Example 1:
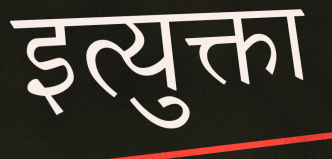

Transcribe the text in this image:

इत्युक्ता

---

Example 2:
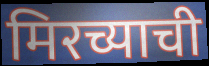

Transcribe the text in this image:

मिरच्याची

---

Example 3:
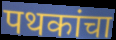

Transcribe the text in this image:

पथकांचा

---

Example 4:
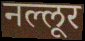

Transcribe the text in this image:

नल्लूर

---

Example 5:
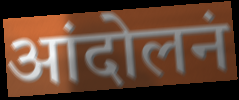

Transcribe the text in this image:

आंदोलनं